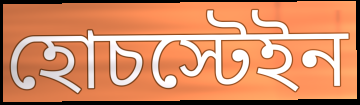
হোচস্টেইন